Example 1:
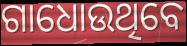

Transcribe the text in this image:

ଗାଧୋଉଥିବେ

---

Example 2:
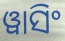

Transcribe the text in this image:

ୱାସିଂ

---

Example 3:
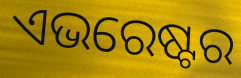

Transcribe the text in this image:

ଏଭରେଷ୍ଟର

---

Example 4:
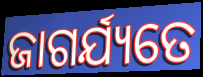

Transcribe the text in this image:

ଜାଗର୍ଯ୍ୟତେ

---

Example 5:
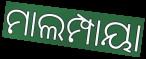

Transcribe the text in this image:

ମାଲମ୍ପାୟା